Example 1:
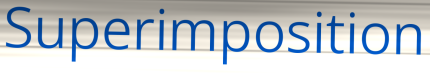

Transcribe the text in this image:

Superimposition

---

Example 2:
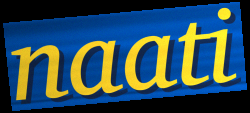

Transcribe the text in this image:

naati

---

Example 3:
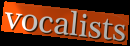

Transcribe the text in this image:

vocalists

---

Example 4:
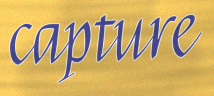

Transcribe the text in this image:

capture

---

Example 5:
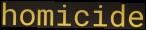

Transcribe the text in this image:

homicide